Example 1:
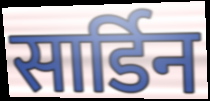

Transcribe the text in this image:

सार्डिन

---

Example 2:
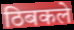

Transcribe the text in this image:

ठिबकले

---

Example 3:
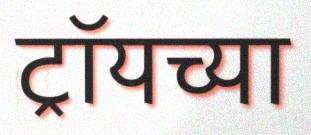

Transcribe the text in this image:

ट्रॉयच्या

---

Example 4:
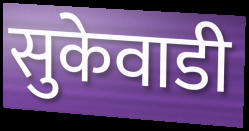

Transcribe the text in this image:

सुकेवाडी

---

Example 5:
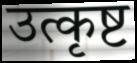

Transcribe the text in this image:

उत्कृष्ट